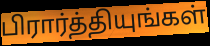
பிரார்த்தியுங்கள்